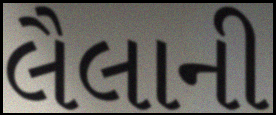
લૈલાની